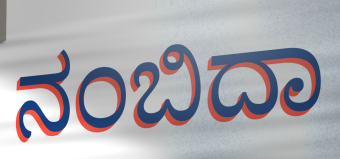
ನಂಬಿದಾ